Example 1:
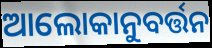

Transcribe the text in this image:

ଆଲୋକାନୁବର୍ତ୍ତନ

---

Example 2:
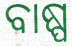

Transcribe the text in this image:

ବାଷ୍ପ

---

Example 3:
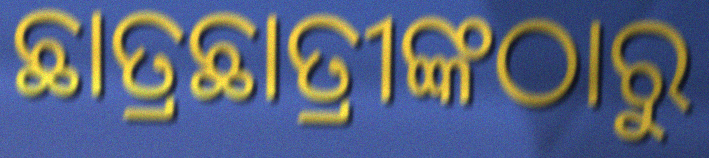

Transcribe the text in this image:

ଛାତ୍ରଛାତ୍ରୀଙ୍କଠାରୁ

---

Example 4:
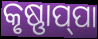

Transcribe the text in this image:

କୃଷ୍ଣାପ୍‌ପା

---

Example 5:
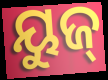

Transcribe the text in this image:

ୟୁଜ୍